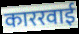
काररवाई